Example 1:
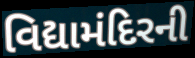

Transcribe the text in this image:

વિદ્યામંદિરની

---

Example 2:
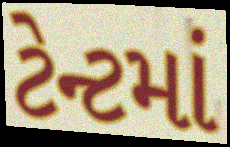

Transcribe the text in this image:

ટેન્ટમાં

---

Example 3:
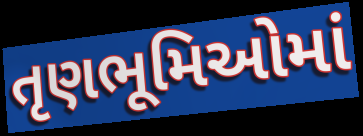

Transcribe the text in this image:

તૃણભૂમિઓમાં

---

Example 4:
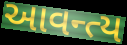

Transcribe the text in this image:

આવન્ત્ય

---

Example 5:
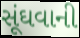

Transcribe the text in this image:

સૂંઘવાની